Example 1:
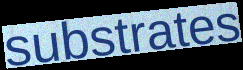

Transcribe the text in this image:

substrates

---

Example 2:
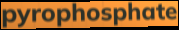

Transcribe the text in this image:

pyrophosphate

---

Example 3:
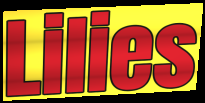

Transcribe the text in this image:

Lilies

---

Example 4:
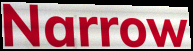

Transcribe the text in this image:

Narrow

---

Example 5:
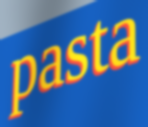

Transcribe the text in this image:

pasta